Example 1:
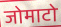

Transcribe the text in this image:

जोमाटो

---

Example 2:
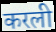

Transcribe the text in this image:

करली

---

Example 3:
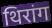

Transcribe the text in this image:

थिरांग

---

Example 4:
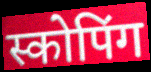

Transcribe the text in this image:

स्कोपिंग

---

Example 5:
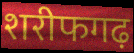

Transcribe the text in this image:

शरीफगढ़